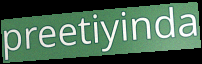
preetiyinda